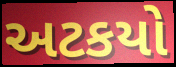
અટકયો